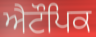
ਐਟੌਪਿਕ